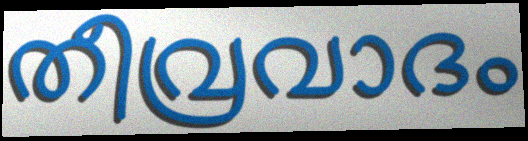
തീവ്രവാദം